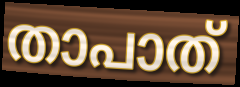
താപാത്